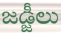
జడ్జీలు